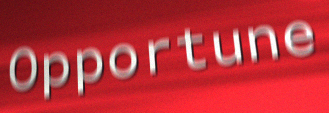
Opportune